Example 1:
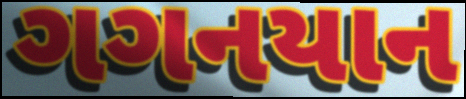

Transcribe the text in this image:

ગગનયાન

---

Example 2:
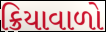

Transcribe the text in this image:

ક્રિયાવાળો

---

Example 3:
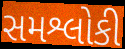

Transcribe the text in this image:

સમશ્લોકી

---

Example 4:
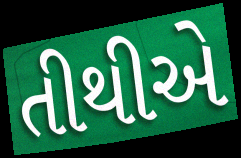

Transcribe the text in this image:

તીથીએ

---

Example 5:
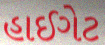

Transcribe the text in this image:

હાઈગેટ